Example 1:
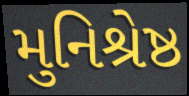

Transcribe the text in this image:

મુનિશ્રેષ્ઠ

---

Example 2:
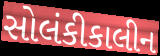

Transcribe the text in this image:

સોલંકીકાલીન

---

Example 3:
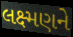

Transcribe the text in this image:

લક્ષ્મણને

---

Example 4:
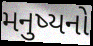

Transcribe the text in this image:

મનુષ્યનો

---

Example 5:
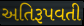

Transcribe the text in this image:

અતિરૂપવતી